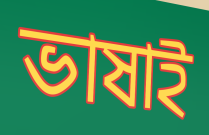
ভাষাই